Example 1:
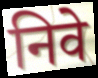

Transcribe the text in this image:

निवे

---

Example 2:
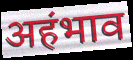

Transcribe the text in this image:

अहंभाव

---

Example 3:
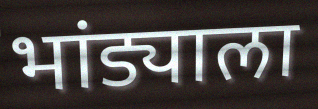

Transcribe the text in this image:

भांड्याला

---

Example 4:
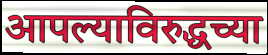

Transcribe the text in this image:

आपल्याविरुद्धच्या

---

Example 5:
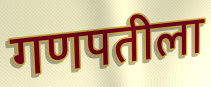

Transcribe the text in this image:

गणपतीला